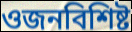
ওজনবিশিষ্ট